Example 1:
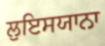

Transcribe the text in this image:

ਲੁਇਸਯਾਨਾ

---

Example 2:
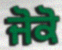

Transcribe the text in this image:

ਜੋਕੋ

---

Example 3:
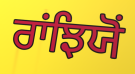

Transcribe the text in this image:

ਰਾਂਝਿਯੋਂ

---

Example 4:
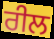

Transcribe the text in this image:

ਰੀਲ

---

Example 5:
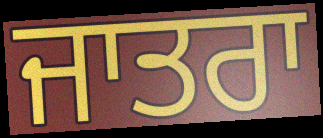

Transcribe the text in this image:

ਜਾਤਰਾ